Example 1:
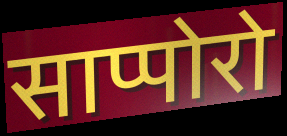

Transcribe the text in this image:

साप्पोरो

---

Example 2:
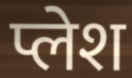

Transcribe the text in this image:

प्लेश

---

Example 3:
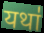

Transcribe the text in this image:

यथा॑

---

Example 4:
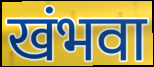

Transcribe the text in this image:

खंभवा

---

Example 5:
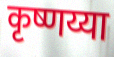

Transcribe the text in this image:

कृष्णय्या